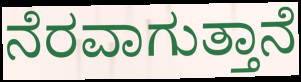
ನೆರವಾಗುತ್ತಾನೆ